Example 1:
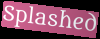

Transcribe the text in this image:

Splashed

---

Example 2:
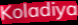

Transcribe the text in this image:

Koladiya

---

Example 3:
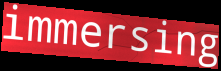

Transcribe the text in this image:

immersing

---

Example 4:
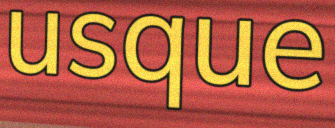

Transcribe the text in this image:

usque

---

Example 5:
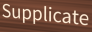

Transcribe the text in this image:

Supplicate